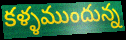
కళ్ళముందున్న